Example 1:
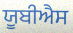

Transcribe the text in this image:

ਯੂਬੀਐਸ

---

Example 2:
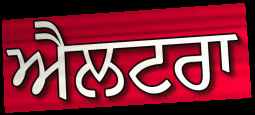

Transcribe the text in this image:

ਐਲਟਰਾ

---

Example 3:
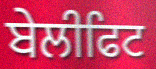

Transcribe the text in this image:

ਬੇਲੀਫਿਟ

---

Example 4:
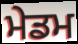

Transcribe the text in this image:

ਮੇਡਮ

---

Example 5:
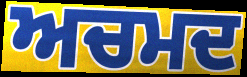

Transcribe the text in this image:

ਅਚਮਦ